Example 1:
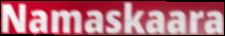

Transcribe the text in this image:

Namaskaara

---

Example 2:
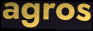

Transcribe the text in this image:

agros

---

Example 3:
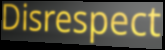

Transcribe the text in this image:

Disrespect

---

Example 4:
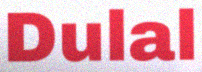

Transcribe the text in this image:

Dulal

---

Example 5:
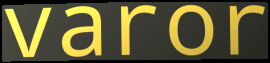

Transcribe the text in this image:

varor